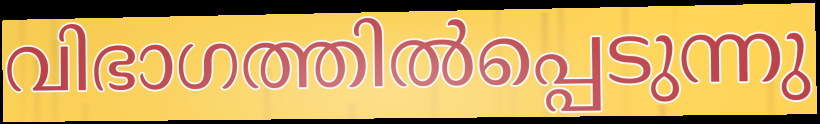
വിഭാഗത്തിൽപ്പെടുന്നു